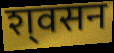
श्वसन